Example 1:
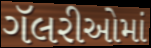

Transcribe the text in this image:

ગૅલરીઓમાં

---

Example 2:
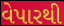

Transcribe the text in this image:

વેપારથી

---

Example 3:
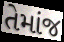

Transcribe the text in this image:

તેમાંજ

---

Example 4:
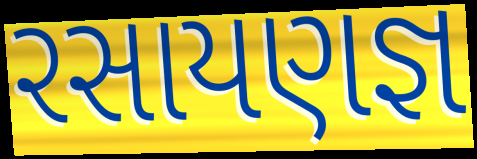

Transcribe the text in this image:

રસાયણજ્ઞ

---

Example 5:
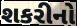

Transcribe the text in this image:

શકરીનો